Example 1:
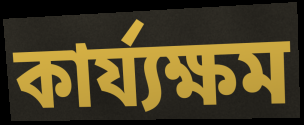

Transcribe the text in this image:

কাৰ্য্যক্ষম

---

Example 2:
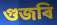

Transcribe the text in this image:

গুজৰি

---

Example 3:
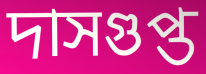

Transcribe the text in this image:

দাসগুপ্ত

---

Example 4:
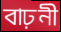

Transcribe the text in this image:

বাঢ়নী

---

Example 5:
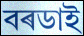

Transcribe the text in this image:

বৰডাই